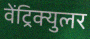
वेंट्रिक्युलर